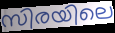
സിരയിലെ